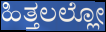
ಹಿತ್ತಲಲ್ಲೋ